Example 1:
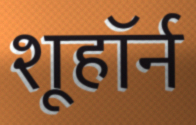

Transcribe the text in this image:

शूहॉर्न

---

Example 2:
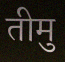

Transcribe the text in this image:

तीमु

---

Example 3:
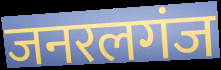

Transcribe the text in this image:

जनरलगंज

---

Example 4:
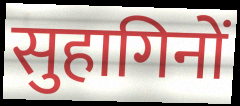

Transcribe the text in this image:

सुहागिनों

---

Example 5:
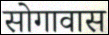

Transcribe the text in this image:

सोगावास